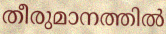
തീരുമാനത്തിൽ